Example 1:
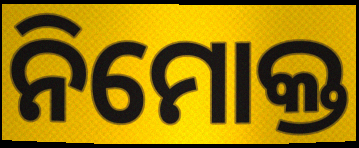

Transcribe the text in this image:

ନିମୋକ୍ତ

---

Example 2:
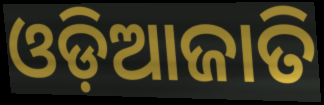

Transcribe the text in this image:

ଓଡ଼ିଆଜାତି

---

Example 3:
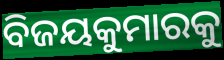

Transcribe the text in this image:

ବିଜୟକୁମାରକୁ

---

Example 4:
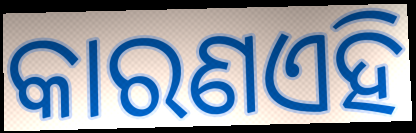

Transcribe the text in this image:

କାରଣଏହି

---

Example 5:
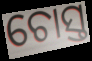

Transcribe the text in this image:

ଚୋସ୍ତ